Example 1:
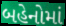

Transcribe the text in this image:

બહેનોમાં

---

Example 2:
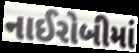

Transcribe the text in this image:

નાઈરોબીમાં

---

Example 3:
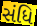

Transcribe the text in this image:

સંધિ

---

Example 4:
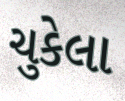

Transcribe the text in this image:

ચુકેલા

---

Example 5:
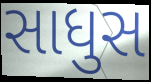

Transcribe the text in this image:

સાધુસ